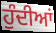
ਹੁੰਦੀਆਂ